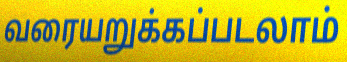
வரையறுக்கப்படலாம்